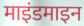
माइंडमाइन